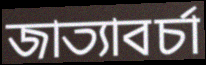
জাত্যাবৰ্চা